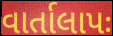
વાર્તાલાપઃ